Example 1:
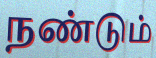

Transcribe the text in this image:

நண்டும்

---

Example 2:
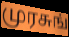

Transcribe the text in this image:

முரசுங்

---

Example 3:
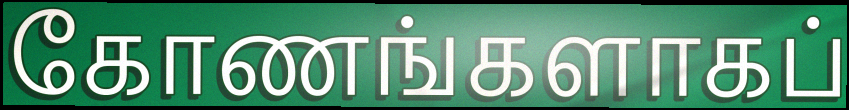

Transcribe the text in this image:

கோணங்களாகப்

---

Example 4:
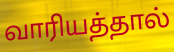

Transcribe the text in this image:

வாரியத்தால்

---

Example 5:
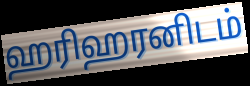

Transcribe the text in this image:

ஹரிஹரனிடம்